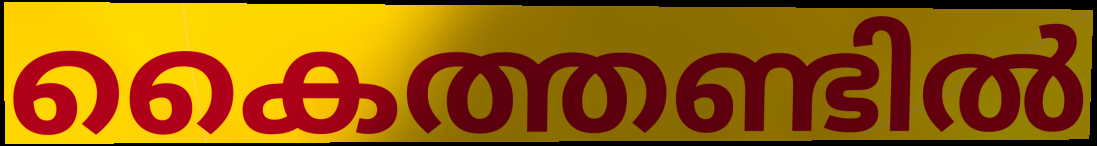
കൈത്തണ്ടിൽ